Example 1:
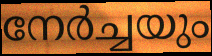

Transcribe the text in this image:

നേർച്ചയും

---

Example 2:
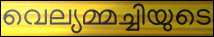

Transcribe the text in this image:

വെല്യമ്മച്ചിയുടെ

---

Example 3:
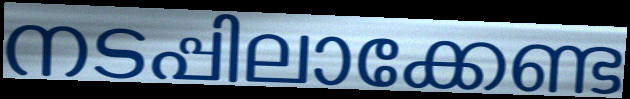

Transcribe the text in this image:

നടപ്പിലാക്കേണ്ട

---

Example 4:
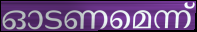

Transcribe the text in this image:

ഓടണമെന്ന്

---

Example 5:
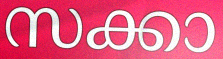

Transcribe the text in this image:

സക്കാ